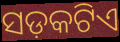
ସଡ଼କଟିଏ